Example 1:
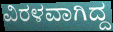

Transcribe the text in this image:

ವಿರಳವಾಗಿದ್ದ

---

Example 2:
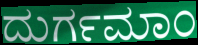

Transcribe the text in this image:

ದುರ್ಗಮಾಂ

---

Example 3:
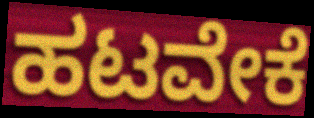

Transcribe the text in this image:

ಹಟವೇಕೆ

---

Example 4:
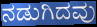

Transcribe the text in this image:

ನಡುಗಿದವು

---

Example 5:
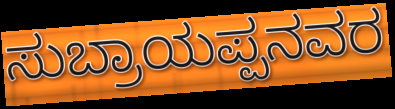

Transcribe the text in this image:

ಸುಬ್ರಾಯಪ್ಪನವರ